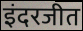
इंदरजीत